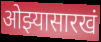
ओझ्यासारखं